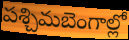
పశ్చిమబెంగాల్లో